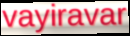
vayiravar